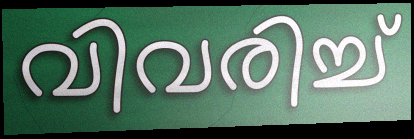
വിവരിച്ച്